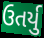
ઉતર્યુ